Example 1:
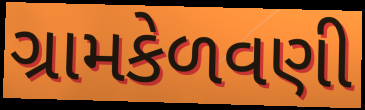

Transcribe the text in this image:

ગ્રામકેળવણી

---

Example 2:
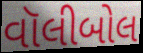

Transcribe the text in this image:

વૉલીબોલ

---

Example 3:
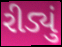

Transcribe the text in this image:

રીડ્યું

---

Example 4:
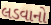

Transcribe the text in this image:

લડવાનો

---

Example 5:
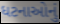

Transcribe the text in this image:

ધટનાઓનું